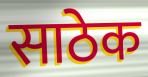
साठेक